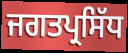
ਜਗਤਪ੍ਰਸਿੱਧ